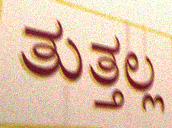
ತುತ್ತಲ್ಲ